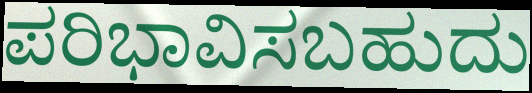
ಪರಿಭಾವಿಸಬಹುದು